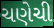
ચણેચી